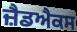
ਜ਼ੈਡਐਕਸ